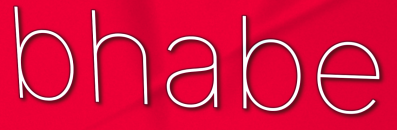
bhabe